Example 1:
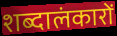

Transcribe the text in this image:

शब्दालंकारों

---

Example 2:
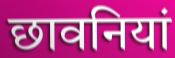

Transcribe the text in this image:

छावनियां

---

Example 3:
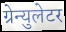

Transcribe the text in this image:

ग्रेन्युलेटर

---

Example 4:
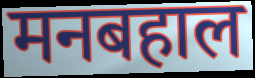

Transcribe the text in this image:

मनबहाल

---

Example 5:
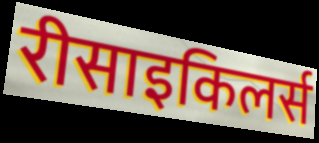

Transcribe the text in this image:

रीसाइकिलर्स